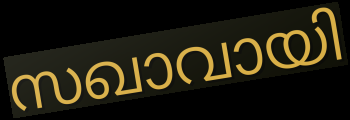
സഖാവായി